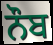
ਨੌਬ